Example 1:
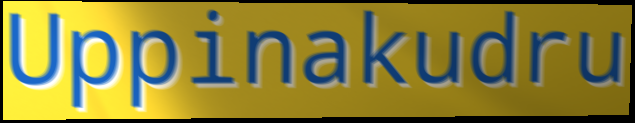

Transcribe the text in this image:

Uppinakudru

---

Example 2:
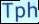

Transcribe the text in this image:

Tph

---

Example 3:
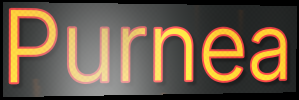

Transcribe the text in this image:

Purnea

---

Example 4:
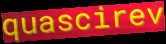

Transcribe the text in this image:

quascirev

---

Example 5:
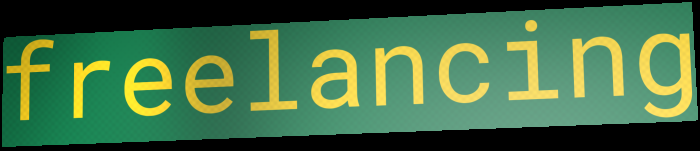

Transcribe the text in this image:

freelancing